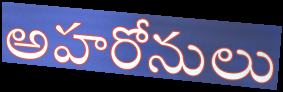
అహరోనులు